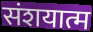
संशयात्म